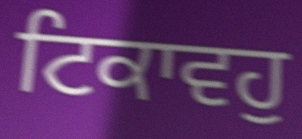
ਟਿਕਾਵਹੁ